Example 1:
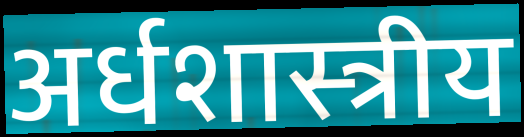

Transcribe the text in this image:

अर्धशास्त्रीय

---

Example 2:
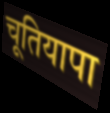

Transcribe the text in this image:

चूतियापा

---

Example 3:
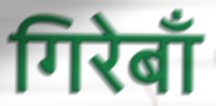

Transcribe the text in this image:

गिरेबाँ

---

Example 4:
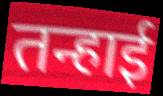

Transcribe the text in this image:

तन्हाई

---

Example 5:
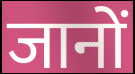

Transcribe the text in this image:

जानों